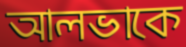
আলভাকে